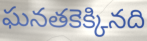
ఘనతకెక్కినది